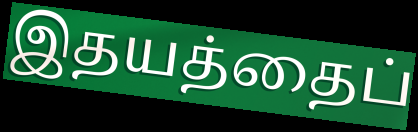
இதயத்தைப்